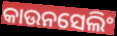
କାଉନସେଲିଂ